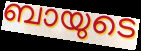
ബായുടെ